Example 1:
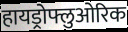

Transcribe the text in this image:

हायड्रोफ्लुओरिक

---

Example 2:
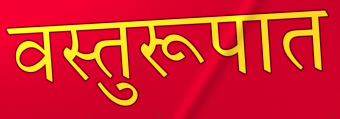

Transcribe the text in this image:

वस्तुरूपात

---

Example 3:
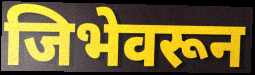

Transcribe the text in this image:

जिभेवरून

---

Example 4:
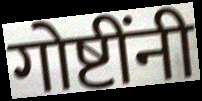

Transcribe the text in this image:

गोष्टींनी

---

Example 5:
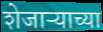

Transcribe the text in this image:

शेजाऱ्याच्या